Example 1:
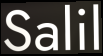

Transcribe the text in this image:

Salil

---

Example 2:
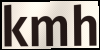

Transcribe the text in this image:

kmh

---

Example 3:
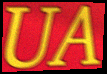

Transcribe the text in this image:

UA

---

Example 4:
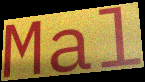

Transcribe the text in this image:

Mal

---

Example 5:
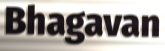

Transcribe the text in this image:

Bhagavan